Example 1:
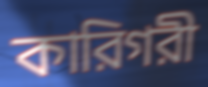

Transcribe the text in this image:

কারিগরী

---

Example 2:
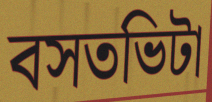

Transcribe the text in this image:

বসতভিটা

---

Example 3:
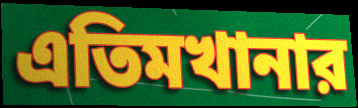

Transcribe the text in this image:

এতিমখানার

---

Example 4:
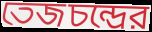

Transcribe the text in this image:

তেজচন্দ্রের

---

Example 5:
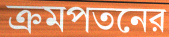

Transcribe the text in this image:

ক্রমপতনের